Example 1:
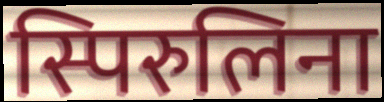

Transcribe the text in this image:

स्पिरुलिना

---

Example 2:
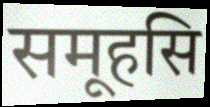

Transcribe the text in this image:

समूहसि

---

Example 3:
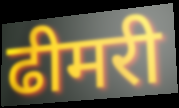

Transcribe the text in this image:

ढीमरी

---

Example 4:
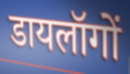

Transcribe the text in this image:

डायलॉगों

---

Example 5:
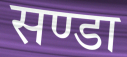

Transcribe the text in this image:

सण्डा